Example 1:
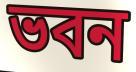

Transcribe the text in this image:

ভবন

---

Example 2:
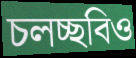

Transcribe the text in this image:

চলচ্ছবিও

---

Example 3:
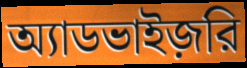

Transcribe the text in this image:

অ্যাডভাইজ়রি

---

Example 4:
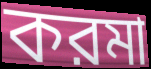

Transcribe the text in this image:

করমা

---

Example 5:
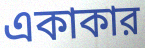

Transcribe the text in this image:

একাকার